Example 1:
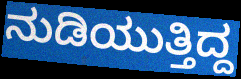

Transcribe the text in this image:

ನುಡಿಯುತ್ತಿದ್ದ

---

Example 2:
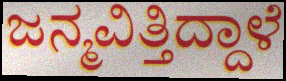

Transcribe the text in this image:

ಜನ್ಮವಿತ್ತಿದ್ದಾಳೆ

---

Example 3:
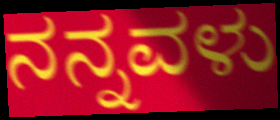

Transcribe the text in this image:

ನನ್ನವಳು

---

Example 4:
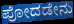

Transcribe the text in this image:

ಪೋದಡೇನು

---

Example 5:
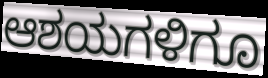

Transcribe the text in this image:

ಆಶಯಗಳಿಗೂ